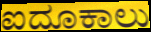
ಐದೂಕಾಲು